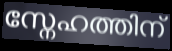
സ്നേഹത്തിന്